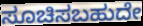
ಸೂಚಿಸಬಹುದೇ